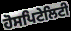
ਹੋਸਪਿਟੇਲਿਟੀ